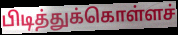
பிடித்துக்கொள்ளச்